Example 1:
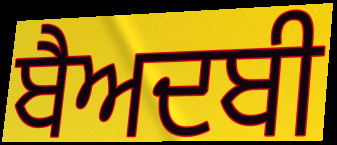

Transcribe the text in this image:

ਬੈਅਦਬੀ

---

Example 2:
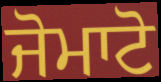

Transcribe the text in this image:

ਜੋਮਾਟੋ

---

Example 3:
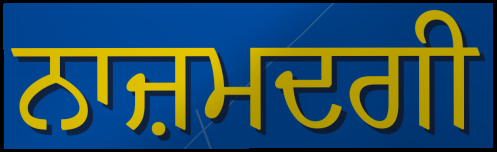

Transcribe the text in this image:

ਨਾਜ਼ਮਦਗੀ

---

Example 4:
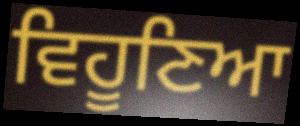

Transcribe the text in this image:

ਵਿਹੂਣਿਆ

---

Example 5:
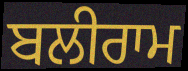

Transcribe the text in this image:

ਬਲੀਰਾਮ